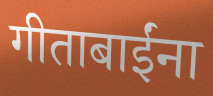
गीताबाईंना